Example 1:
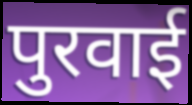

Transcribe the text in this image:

पुरवाई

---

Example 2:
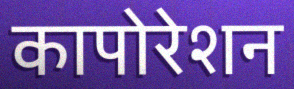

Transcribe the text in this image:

कापोरेशन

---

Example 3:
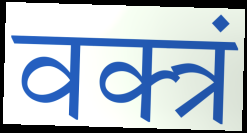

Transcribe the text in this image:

वक्त्रं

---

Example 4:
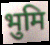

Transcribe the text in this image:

भुमि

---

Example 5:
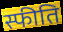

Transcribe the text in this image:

स्‍फीति